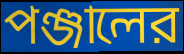
পঞ্জালের